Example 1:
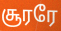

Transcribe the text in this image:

சூரரே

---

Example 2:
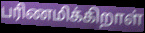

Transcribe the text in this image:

பரிணமிக்கிறாள்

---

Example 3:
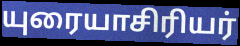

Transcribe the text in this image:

யுரையாசிரியர்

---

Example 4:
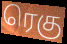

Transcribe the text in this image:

ரெகு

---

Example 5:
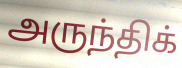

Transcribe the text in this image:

அருந்திக்